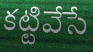
కట్టివేసే